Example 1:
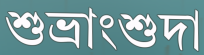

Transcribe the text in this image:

শুভ্রাংশুদা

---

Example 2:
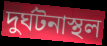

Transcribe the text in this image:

দুর্ঘটনাস্থল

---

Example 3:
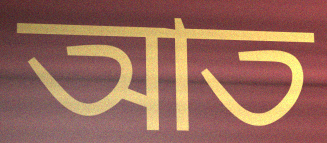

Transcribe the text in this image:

আত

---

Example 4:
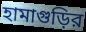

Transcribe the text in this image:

হামাগুড়ির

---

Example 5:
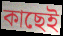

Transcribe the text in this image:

কাছেই